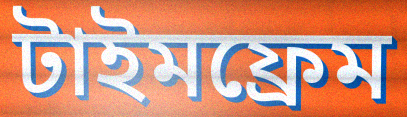
টাইমফ্রেম